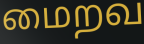
மைறவ